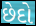
છેદો